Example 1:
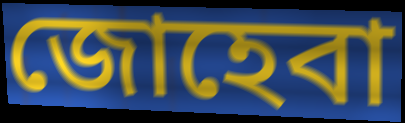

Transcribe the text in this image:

জোহেবা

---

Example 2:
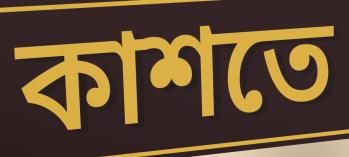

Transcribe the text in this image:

কাশতে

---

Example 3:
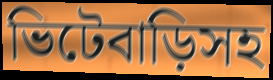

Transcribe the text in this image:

ভিটেবাড়িসহ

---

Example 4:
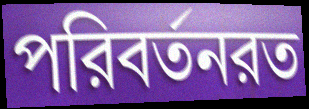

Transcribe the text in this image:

পরিবর্তনরত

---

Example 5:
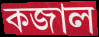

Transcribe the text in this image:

কজাল